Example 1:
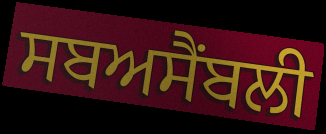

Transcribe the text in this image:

ਸਬਅਸੈਂਬਲੀ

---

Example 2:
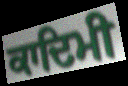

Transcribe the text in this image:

ਕਾਦਿਮੀ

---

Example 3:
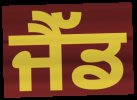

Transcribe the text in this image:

ਜੈੱਡ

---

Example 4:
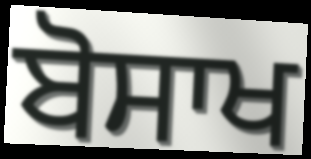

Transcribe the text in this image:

ਬੋਸਾਖ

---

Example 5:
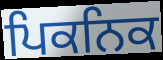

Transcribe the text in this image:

ਪਿਕਨਿਕ